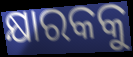
କ୍ଷାରକକୁ